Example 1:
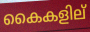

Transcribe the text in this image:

കൈകളില്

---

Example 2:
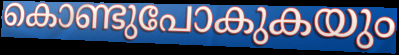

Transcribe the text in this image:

കൊണ്ടുപോകുകയും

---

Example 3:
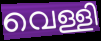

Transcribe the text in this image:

വെള്ളി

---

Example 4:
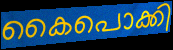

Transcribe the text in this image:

കൈപൊക്കി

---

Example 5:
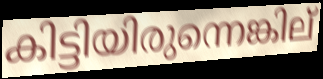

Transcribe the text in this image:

കിട്ടിയിരുന്നെങ്കില്